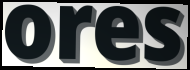
ores